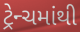
ટ્રેન્ચમાંથી